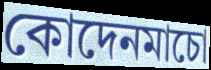
কোদেনমাচো